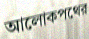
আলোকপথের